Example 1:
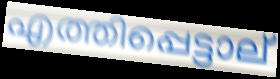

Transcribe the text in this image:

എത്തിപ്പെട്ടാല്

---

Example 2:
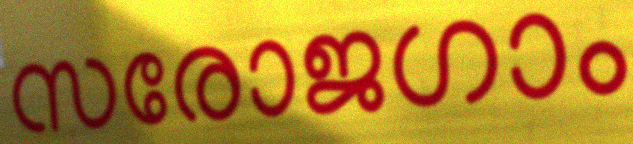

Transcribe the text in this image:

സരോജഗാം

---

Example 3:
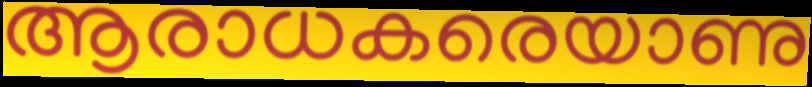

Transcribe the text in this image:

ആരാധകരെയാണു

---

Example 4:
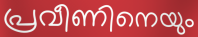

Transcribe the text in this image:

പ്രവീണിനെയും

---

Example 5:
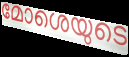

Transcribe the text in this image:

മോശെയുടെ